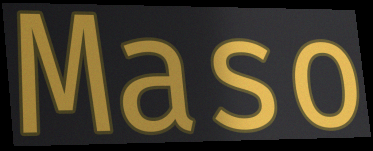
Maso